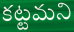
కట్టమని